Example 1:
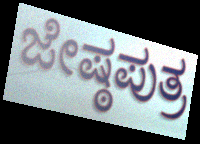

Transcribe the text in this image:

ಜೇಷ್ಠಪುತ್ರ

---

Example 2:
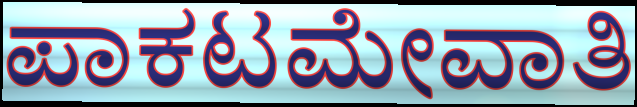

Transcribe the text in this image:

ಪಾಕಟಮೇವಾತಿ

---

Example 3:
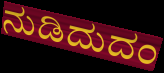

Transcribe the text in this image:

ನುಡಿದುದಂ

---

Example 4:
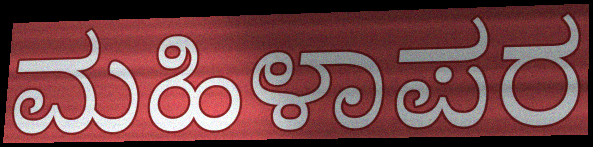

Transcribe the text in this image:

ಮಹಿಳಾಪರ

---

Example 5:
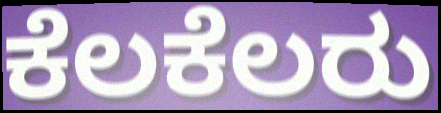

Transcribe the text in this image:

ಕೆಲಕೆಲರು